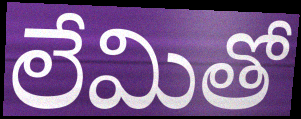
లేమితో